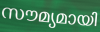
സൗമ്യമായി